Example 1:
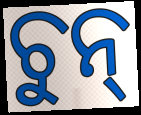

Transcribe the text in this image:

ଚୁନ୍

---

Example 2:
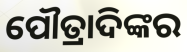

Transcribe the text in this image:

ପୌତ୍ରାଦିଙ୍କର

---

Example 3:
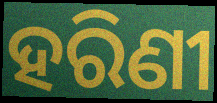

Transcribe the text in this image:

ହରିଣୀ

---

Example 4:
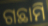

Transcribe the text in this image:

ଗଛାମି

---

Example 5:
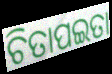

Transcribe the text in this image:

ଚିତାପଇତା